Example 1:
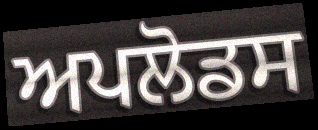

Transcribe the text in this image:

ਅਪਲੋਡਸ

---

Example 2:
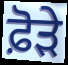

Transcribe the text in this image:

ਫ਼ੋੜੇ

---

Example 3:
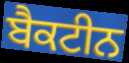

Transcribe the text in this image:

ਬੈਕਟੀਨ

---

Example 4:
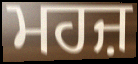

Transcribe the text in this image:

ਮਹਜ਼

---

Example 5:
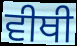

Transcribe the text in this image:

ਵੀਥੀ